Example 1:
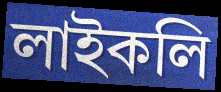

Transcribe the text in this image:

লাইকলি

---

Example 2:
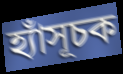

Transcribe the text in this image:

হ্যাঁসূচক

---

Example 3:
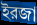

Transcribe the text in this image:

ইরজা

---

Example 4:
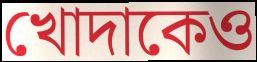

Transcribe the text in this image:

খোদাকেও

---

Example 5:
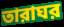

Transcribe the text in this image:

তারাঘর